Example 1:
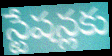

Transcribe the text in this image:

స్టేషన్లకు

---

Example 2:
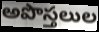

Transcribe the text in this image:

అపొస్తలుల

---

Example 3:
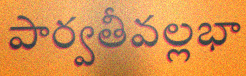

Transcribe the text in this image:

పార్వతీవల్లభా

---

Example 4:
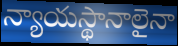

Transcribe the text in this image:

న్యాయస్థానాలైనా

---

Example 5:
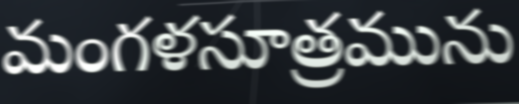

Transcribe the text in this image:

మంగళసూత్రమును